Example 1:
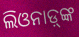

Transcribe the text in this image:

ଲିଓନାଡ଼୍‌ଙ୍କ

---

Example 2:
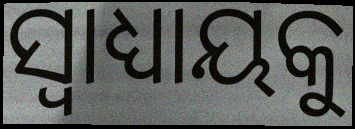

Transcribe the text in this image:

ସ୍ୱାଧ୍ୟାୟକୁ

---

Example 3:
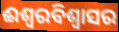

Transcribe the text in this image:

ଈଶ୍ୱରବିଶ୍ୱାସର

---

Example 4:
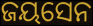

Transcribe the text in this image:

ଜୟସେନ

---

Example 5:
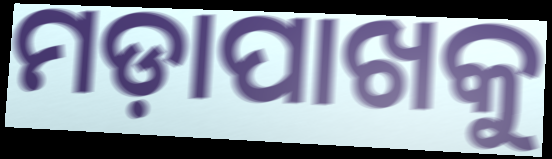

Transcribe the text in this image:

ମଡ଼ାପାଖକୁ